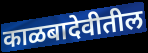
काळबादेवीतील